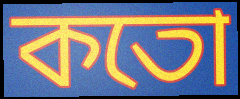
কতো